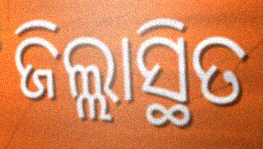
ଜିଲ୍ଲାସ୍ଥିତ